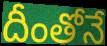
దీంతోనే